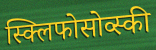
स्क्लिफोसोव्स्की